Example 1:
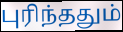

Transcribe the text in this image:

புரிந்ததும்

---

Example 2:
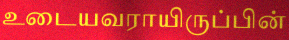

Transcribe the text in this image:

உடையவராயிருப்பின்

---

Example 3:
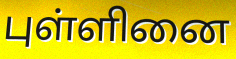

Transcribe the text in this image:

புள்ளினை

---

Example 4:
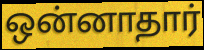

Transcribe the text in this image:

ஒன்னாதார்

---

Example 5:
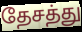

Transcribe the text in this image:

தேசத்து